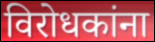
विरोधकांना